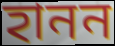
হানন